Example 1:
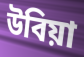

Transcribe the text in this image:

উবিয়া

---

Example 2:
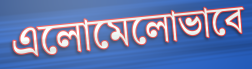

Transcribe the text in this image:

এলোমেলোভাবে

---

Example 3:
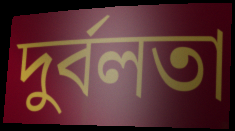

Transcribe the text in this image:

দুর্বলতা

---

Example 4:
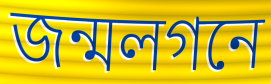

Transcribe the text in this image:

জন্মলগনে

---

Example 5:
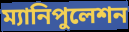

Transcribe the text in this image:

ম্যানিপুলেশন